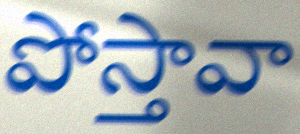
పోస్తావా